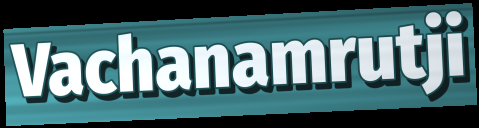
Vachanamrutji